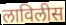
लाविलीस